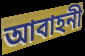
আবাহনী